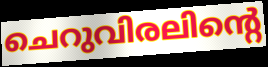
ചെറുവിരലിന്റെ